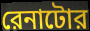
রেনাটোর